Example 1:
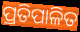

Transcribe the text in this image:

ପ୍ରତିପାଳିତ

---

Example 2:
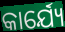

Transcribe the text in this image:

କାର୍ଯ୍ୟେ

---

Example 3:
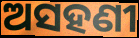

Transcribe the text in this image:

ଅସହଣୀ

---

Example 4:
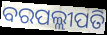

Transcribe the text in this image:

ବରପଲ୍ଲୀପତି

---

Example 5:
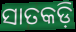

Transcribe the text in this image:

ସାତକଡ଼ି